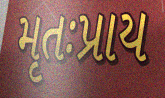
મૃતઃપ્રાય